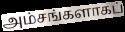
அம்சங்களாகப்